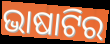
ଭାଷାଟିର